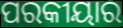
ପରକୀୟାର